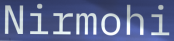
Nirmohi